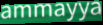
ammayya